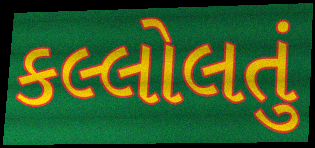
કલ્લોલતું